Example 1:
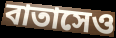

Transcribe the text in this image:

বাতাসেও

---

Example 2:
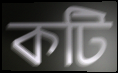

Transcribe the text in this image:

কটি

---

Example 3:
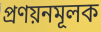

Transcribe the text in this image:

প্রণয়নমূলক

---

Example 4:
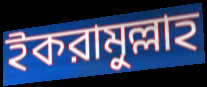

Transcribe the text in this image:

ইকরামুল্লাহ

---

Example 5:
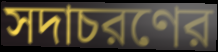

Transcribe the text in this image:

সদাচরণের